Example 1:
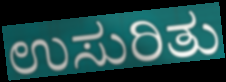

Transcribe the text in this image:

ಉಸುರಿತು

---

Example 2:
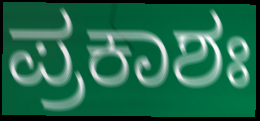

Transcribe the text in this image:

ಪ್ರಕಾಶಃ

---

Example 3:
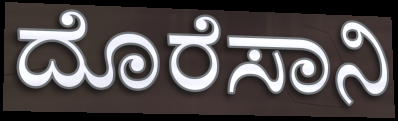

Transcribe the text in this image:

ದೊರೆಸಾನಿ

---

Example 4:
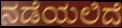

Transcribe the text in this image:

ನಡೆಯಲಿದೆ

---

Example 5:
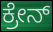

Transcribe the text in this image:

ಕ್ರೇನ್